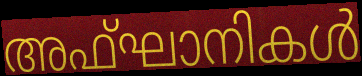
അഫ്ഘാനികൾ